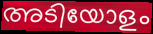
അടിയോളം